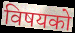
विषयको